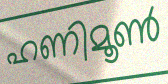
ഹണിമൂൺ